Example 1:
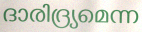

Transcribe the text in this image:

ദാരിദ്ര്യമെന്ന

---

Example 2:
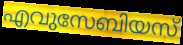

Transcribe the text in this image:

എവുസേബിയസ്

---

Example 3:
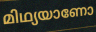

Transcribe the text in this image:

മിഥ്യയാണോ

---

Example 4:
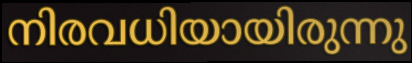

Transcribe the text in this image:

നിരവധിയായിരുന്നു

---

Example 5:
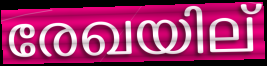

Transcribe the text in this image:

രേഖയില്